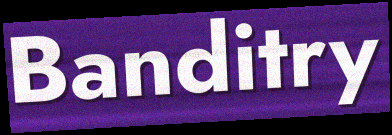
Banditry